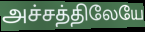
அச்சத்திலேயே